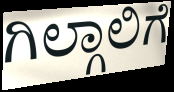
ಗಿಲ್ಗಾಲಿಗೆ